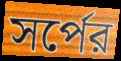
সর্পের